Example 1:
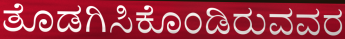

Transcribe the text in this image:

ತೊಡಗಿಸಿಕೊಂಡಿರುವವರ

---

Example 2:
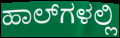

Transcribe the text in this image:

ಹಾಲ್‌ಗಳಲ್ಲಿ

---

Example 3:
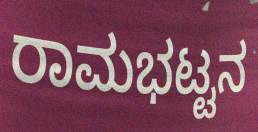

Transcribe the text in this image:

ರಾಮಭಟ್ಟನ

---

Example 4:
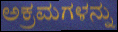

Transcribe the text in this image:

ಅಕ್ರಮಗಳನ್ನು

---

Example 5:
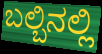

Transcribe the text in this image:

ಬಲ್ಬಿನಲ್ಲಿ